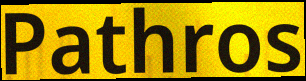
Pathros